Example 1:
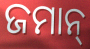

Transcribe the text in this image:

ଜମାନ୍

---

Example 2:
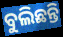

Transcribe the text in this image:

ବୁଲିଛନ୍ତି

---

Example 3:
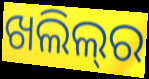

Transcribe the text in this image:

ଖଲିଲ୍‍ର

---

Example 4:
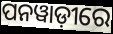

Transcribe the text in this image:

ପନୱାଡ଼ୀରେ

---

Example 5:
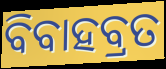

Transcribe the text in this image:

ବିବାହବ୍ରତ